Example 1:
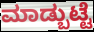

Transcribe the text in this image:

ಮಾಡ್ಬುಟ್ಟೆ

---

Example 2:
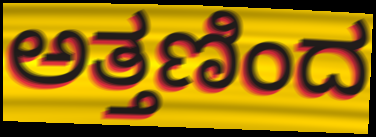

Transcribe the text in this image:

ಅತ್ತಣಿಂದ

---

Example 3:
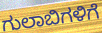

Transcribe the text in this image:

ಗುಲಾಬಿಗಳಿಗೆ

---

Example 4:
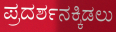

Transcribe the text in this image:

ಪ್ರದರ್ಶನಕ್ಕಿಡಲು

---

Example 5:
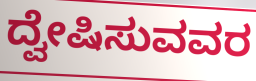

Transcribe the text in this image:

ದ್ವೇಷಿಸುವವರ